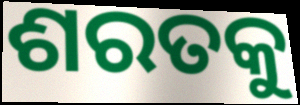
ଶରତକୁ